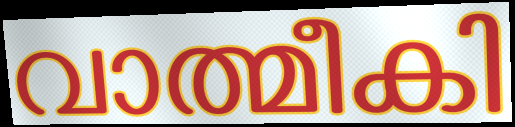
വാത്മീകി